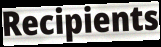
Recipients